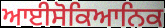
ਆਈਸੋਕਿਆਨਿਕ